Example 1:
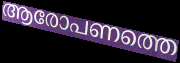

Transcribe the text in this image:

ആരോപണത്തെ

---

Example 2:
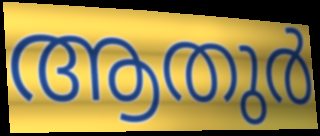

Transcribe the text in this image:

ആതുർ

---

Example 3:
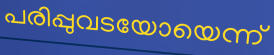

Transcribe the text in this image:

പരിപ്പുവടയോയെന്ന്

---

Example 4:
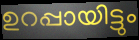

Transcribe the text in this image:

ഉറപ്പായിട്ടും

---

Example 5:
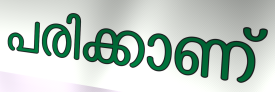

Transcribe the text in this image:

പരിക്കാണ്